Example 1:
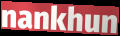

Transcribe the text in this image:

nankhun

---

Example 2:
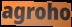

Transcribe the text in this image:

agroho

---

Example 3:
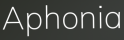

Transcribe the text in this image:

Aphonia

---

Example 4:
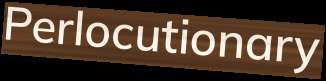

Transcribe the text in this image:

Perlocutionary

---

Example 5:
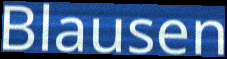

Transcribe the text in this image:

Blausen